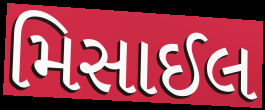
મિસાઈલ